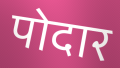
पोदार